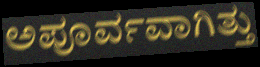
ಅಪೂರ್ವವಾಗಿತ್ತು